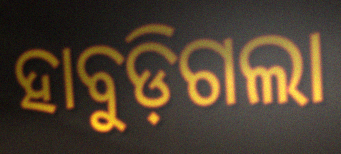
ହାବୁଡ଼ିଗଲା